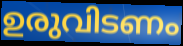
ഉരുവിടണം